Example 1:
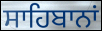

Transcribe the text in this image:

ਸਾਹਿਬਾਨਾਂ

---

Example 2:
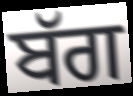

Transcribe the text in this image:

ਬੱਗ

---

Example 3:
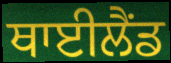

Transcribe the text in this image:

ਥਾਈਲੈਂਡ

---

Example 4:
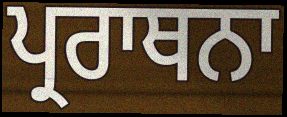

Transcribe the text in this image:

ਪ੍ਰਰਾਥਨਾ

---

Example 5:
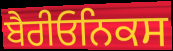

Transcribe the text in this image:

ਬੈਰੀਓਨਿਕਸ